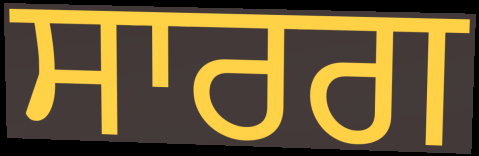
ਸਾਰਗ